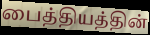
பைத்தியத்தின்